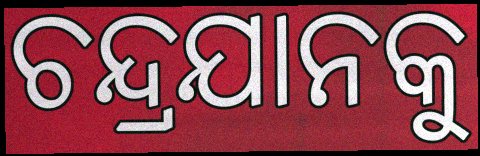
ଚନ୍ଦ୍ରଯାନକୁ